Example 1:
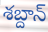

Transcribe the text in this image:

శబ్దాన్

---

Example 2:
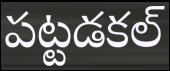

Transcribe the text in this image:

పట్టడకల్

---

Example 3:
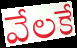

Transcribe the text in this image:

వేలకే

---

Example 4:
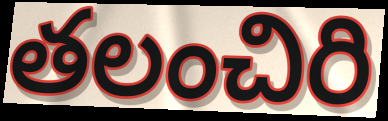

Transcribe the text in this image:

తలంచిరి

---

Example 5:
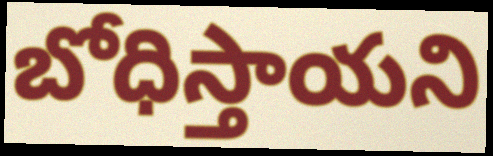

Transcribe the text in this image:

బోధిస్తాయని